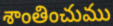
శాంతించుము